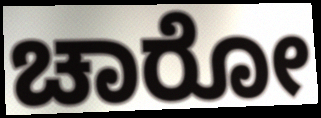
ಚಾರೋ